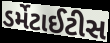
ડર્મેટાઈટીસ